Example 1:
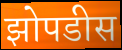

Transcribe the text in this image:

झोपडीस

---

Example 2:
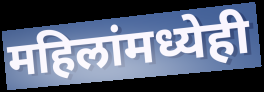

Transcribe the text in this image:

महिलांमध्येही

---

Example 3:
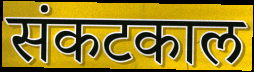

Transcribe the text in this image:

संकटकाल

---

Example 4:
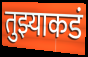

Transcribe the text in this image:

तुझ्याकडं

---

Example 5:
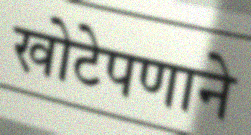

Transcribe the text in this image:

खोटेपणाने